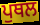
ਪੁਥਲ